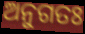
ଅନୁଗତଃ